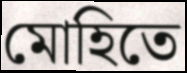
মোহিতে